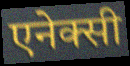
एनेक्‍सी